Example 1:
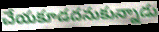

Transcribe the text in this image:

చేయకూడదనుకున్నాడు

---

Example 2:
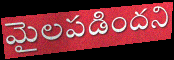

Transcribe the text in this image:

మైలపడిందని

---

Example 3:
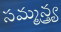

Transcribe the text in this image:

సమ్మన్త్ర్య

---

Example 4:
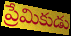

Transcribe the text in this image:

ప్రేమికుడు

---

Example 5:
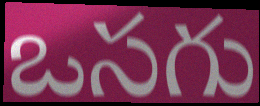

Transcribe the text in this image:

ఒసగు